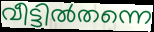
വീട്ടിൽതന്നെ